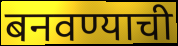
बनवण्याची